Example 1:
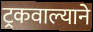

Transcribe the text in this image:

ट्रकवाल्याने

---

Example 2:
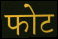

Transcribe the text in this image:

फोट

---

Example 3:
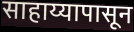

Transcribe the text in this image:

साहाय्यापासून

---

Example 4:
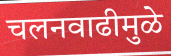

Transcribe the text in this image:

चलनवाढीमुळे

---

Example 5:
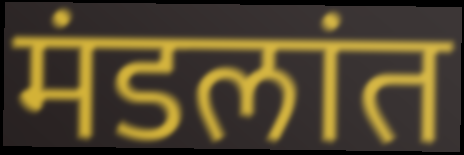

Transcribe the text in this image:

मंडलांत